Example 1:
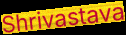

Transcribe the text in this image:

Shrivastava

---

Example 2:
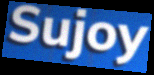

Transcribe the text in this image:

Sujoy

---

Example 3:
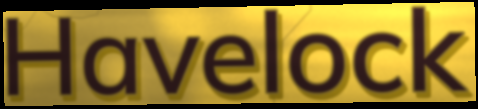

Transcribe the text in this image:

Havelock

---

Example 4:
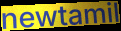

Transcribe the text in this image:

newtamil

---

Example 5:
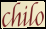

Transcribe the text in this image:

chilo